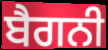
ਬੈਗਨੀ